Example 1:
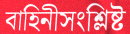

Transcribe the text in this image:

বাহিনীসংশ্লিষ্ট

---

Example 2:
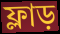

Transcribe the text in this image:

ফ্লাড়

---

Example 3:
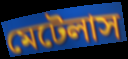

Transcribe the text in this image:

মেটেলাস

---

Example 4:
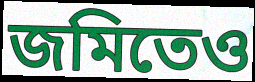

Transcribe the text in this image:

জমিতেও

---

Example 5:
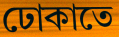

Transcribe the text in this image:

ঢোকাতে